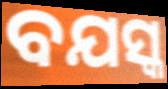
ବଯସ୍କ